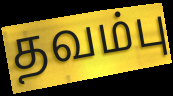
தவம்பு